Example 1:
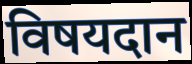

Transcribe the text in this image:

विषयदान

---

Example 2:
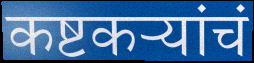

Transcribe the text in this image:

कष्टकऱ्यांचं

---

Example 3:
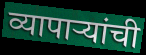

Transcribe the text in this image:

व्यापाऱ्यांची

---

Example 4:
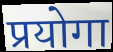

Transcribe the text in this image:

प्रयोगा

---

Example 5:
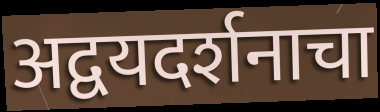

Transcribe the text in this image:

अद्वयदर्शनाचा